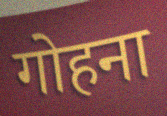
गोहना